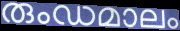
രുംഡമാലം